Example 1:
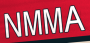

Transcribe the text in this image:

NMMA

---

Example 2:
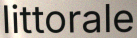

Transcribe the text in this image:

littorale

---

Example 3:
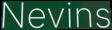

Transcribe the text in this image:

Nevins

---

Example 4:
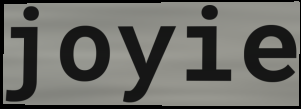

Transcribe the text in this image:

joyie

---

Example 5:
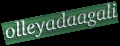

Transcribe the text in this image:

olleyadaagali